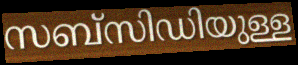
സബ്സിഡിയുള്ള